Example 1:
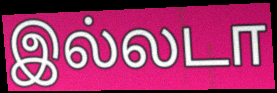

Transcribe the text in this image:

இல்லடா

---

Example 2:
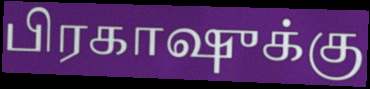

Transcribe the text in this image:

பிரகாஷுக்கு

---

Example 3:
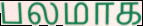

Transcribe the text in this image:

பலமாக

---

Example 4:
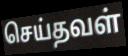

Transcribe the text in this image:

செய்தவள்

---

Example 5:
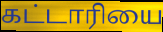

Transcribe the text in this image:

கட்டாரியை